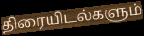
திரையிடல்களும்